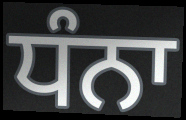
ਧੰਨਾ